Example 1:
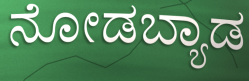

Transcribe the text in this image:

ನೋಡಬ್ಯಾಡ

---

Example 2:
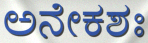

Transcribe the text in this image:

ಅನೇಕಶಃ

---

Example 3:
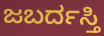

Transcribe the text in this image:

ಜಬರ್ದಸ್ತಿ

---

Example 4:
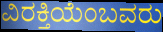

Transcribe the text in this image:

ವಿರಕ್ತಿಯೆಂಬವರು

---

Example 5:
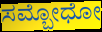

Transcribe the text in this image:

ಸಮ್ಬೋಧೋ